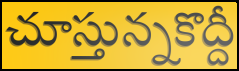
చూస్తున్నకొద్దీ